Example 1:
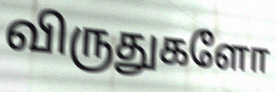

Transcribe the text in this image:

விருதுகளோ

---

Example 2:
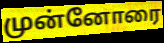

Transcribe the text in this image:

முன்னோரை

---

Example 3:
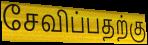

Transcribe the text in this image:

சேவிப்பதற்கு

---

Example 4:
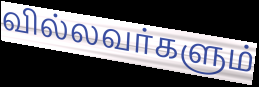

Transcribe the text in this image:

வில்லவர்களும்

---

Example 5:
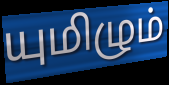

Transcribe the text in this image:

யுமிழும்